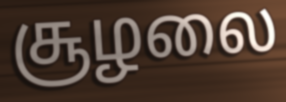
சூழலை